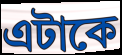
এটাকে